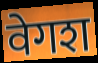
वेगश